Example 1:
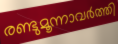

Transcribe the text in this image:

രണ്ടുമൂന്നാവർത്തി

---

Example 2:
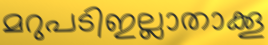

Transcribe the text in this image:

മറുപടിഇല്ലാതാക്കൂ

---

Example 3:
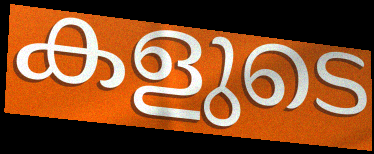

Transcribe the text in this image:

കളുടെ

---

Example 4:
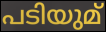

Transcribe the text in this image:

പടിയുമ്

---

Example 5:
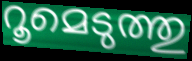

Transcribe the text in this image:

റൂമെടുത്തു